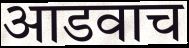
आडवाच